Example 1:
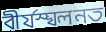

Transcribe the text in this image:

বীৰ্যস্খলনত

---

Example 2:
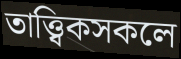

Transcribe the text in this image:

তাত্ত্বিকসকলে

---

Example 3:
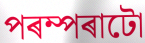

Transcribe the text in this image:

পৰম্পৰাটো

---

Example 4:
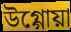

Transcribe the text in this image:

উগ্গোয়া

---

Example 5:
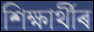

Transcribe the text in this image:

শিক্ষাৰ্থীৰ